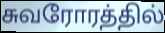
சுவரோரத்தில்